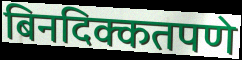
बिनदिक्कतपणे